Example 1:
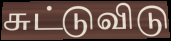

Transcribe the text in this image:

சுட்டுவிடு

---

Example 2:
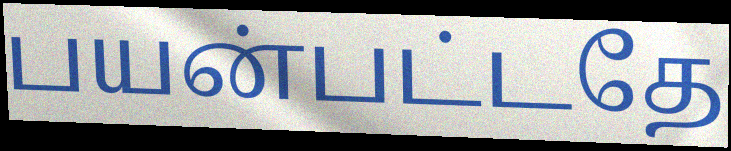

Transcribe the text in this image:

பயன்பட்டதே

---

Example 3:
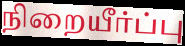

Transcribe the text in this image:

நிறையீர்ப்பு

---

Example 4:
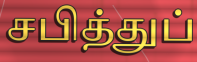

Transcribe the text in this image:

சபித்துப்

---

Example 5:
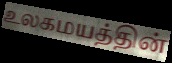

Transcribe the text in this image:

உலகமயத்தின்